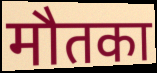
मौतका